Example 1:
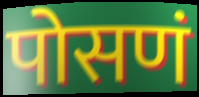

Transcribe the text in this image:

पोसणं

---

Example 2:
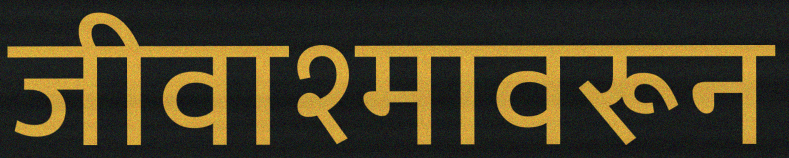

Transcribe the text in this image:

जीवाश्मावरून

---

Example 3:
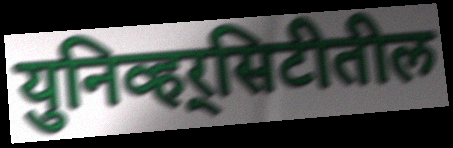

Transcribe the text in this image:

युनिव्हर्सिटीतील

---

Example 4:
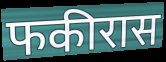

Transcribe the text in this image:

फकीरास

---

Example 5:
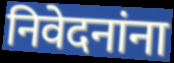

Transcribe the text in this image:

निवेदनांना